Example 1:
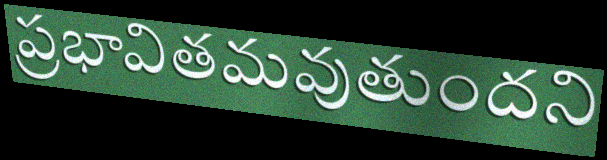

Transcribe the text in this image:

ప్రభావితమవుతుందని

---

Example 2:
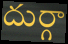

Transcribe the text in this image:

దుర్గా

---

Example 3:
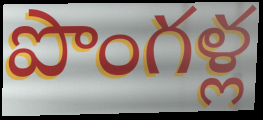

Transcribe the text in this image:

పొంగళ్ల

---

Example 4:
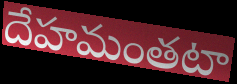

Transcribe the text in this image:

దేహమంతటా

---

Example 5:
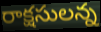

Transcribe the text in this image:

రాక్షసులన్న